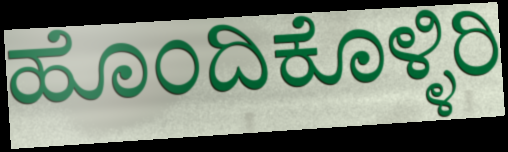
ಹೊಂದಿಕೊಳ್ಳಿರಿ